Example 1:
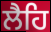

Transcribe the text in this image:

ਲੈਹਿ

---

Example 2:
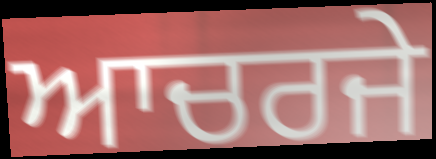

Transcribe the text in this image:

ਆਚਰਜੇ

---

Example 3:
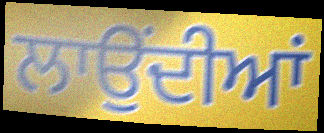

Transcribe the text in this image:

ਲਾਉਂਦੀਆਂ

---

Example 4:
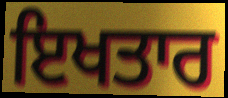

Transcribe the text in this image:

ਇਖਤਾਰ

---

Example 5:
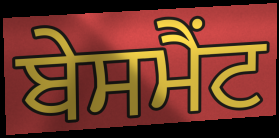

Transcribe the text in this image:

ਬੇਸਮੈਂਟ